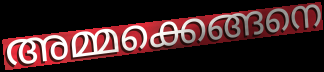
അമ്മക്കെങ്ങനെ